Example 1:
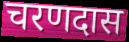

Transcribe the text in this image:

चरणदास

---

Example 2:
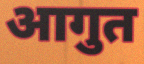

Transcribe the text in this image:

आगुत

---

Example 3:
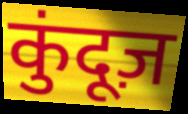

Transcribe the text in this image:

कुंदूज़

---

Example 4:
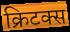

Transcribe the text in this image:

क्रिटक्स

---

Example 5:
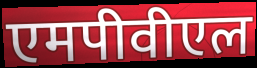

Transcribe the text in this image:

एमपीवीएल